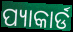
ପ୍ୟାକାର୍ଡ